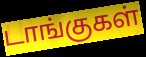
டாங்குகள்